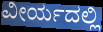
ವೀರ್ಯದಲ್ಲಿ